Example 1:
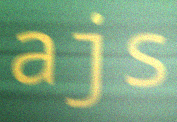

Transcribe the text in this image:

ajs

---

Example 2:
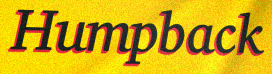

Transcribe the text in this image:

Humpback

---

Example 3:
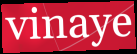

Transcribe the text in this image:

vinaye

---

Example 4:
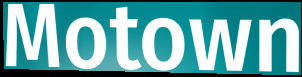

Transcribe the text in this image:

Motown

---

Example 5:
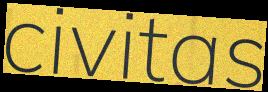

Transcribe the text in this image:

civitas